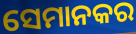
ସେମାନକର